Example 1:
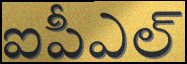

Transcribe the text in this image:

ఐపీఎల్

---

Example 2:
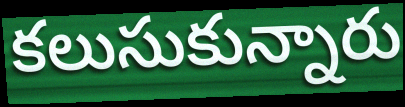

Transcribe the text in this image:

కలుసుకున్నారు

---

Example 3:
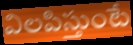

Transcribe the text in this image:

విలపిస్తుంటే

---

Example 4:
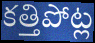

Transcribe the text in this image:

కత్తిపోట్ల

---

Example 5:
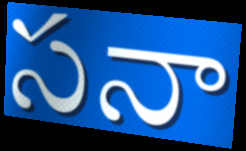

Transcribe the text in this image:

సనా